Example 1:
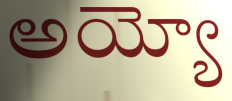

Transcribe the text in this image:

అయ్యో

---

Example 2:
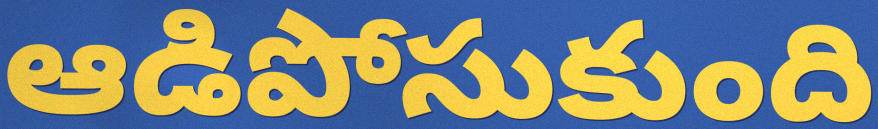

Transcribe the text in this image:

ఆడిపోసుకుంది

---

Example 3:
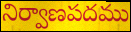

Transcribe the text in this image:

నిర్వాణపదము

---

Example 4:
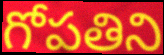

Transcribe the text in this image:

గోపతిని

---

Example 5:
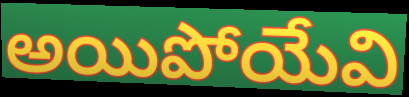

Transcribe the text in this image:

అయిపోయేవి